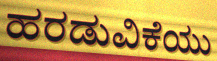
ಹರಡುವಿಕೆಯು